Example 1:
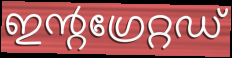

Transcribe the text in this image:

ഇന്റഗ്രേറ്റഡ്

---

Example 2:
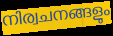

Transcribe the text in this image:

നിര്വചനങ്ങളും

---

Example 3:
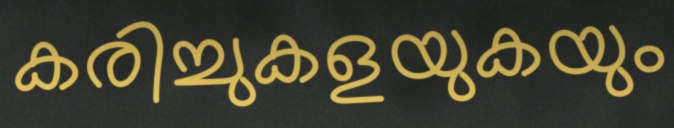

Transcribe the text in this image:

കരിച്ചുകളയുകയും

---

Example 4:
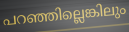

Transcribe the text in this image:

പറഞ്ഞില്ലെങ്കിലും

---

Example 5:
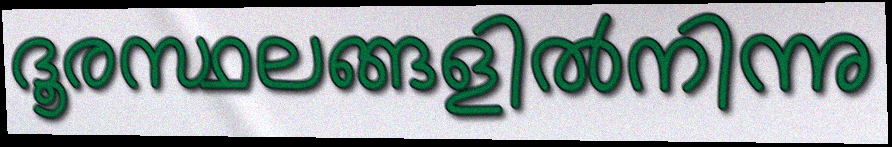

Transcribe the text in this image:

ദൂരസ്ഥലങ്ങളിൽനിന്നു